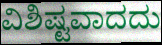
ವಿಶಿಷ್ಟವಾದದು